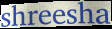
shreesha